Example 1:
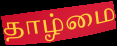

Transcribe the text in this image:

தாழ்மை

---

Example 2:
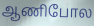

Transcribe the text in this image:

ஆணிபோல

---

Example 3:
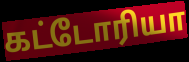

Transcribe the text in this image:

கட்டோரியா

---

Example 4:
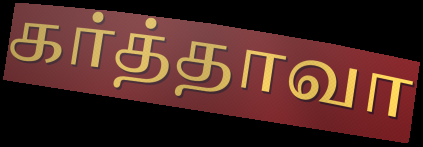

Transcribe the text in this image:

கர்த்தாவா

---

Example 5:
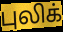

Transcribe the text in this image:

புலிக்